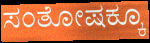
ಸಂತೋಷಕ್ಕೂ